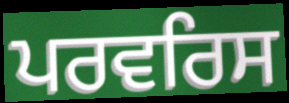
ਪਰਵਰਿਸ